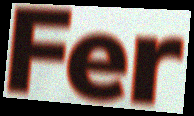
Fer